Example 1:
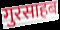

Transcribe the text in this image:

गुरसाहब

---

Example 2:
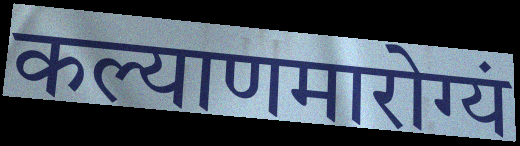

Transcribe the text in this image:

कल्याणमारोग्यं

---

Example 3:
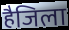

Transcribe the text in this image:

हैजिला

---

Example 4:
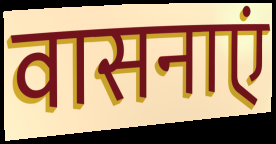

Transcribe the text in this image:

वासनाएं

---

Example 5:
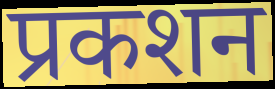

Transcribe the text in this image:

प्रकशन